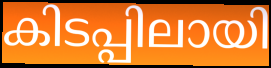
കിടപ്പിലായി